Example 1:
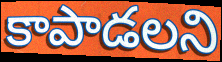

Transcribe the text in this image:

కాపాడలని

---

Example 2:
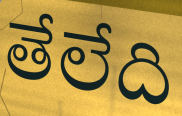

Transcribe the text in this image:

తేలేది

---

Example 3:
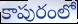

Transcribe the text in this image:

కాపురంలో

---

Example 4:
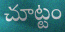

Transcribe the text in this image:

చూట్టం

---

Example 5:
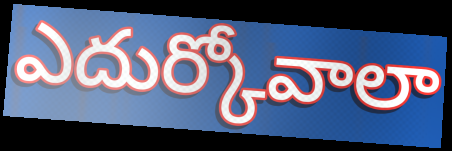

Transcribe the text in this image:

ఎదుర్కోవాలా